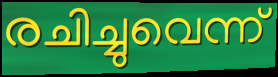
രചിച്ചുവെന്ന്